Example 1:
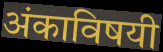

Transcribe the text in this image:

अंकाविषयी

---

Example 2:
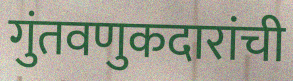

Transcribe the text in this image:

गुंतवणुकदारांची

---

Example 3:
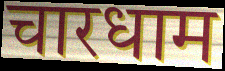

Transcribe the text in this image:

चारधाम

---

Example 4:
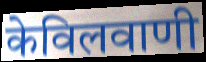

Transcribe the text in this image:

केविलवाणी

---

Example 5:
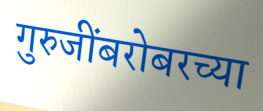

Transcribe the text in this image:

गुरुजींबरोबरच्या